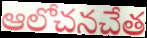
ఆలోచనచేత